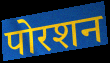
पोरशन